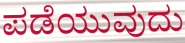
ಪಡೆಯುವುದು